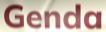
Genda